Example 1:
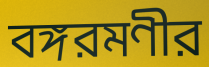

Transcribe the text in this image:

বঙ্গরমণীর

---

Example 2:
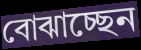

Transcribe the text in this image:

বোঝাচ্ছেন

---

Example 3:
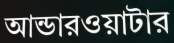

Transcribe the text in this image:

আন্ডারওয়াটার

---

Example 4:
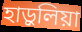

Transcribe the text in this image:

হাড়ুলিয়া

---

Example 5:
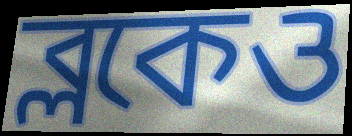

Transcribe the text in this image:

ব্লকেও